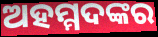
ଅହମ୍ମଦଙ୍କର